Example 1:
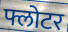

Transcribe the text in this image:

फ्लोटर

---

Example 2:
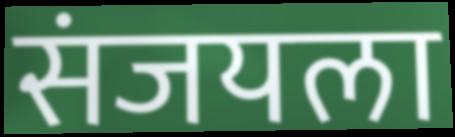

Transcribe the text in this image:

संजयला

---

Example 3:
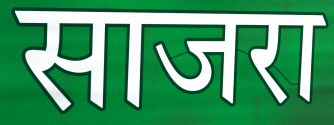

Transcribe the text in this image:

साजरा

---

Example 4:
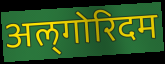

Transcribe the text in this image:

अल्गोरिदम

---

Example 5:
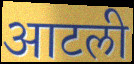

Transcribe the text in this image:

आटली